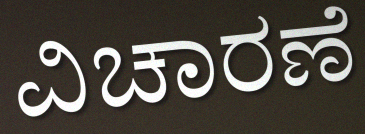
ವಿಚಾರಣೆ